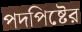
পদপিষ্টের